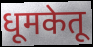
धूमकेतू